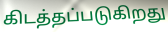
கிடத்தப்படுகிறது